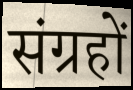
संग्रहों